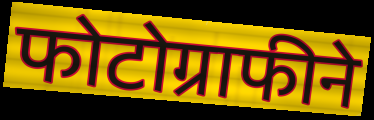
फोटोग्राफीने